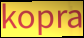
kopra